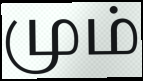
மும்